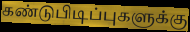
கண்டுபிடிப்புகளுக்கு